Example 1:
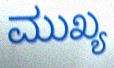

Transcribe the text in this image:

ಮುಖ್ಯ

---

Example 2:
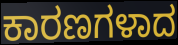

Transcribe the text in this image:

ಕಾರಣಗಳಾದ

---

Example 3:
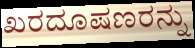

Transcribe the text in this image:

ಖರದೂಷಣರನ್ನು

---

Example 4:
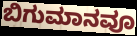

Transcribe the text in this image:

ಬಿಗುಮಾನವೂ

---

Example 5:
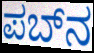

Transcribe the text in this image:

ಪಬ್‌ನ